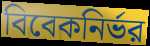
বিবেকনির্ভর